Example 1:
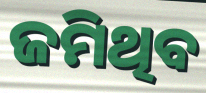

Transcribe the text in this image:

ଜମିଥିବ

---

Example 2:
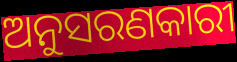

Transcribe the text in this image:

ଅନୁସରଣକାରୀ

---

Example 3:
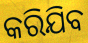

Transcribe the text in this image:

କରିଯିବ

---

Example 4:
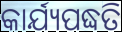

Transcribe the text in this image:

କାର୍ଯ୍ୟପଦ୍ଧତି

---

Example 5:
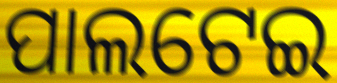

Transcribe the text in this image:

ପାଲଟେଇ